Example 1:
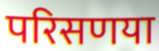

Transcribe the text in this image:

परिसणया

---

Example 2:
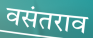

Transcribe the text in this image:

वसंतराव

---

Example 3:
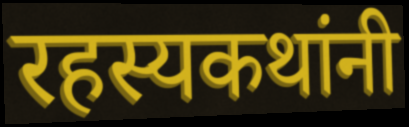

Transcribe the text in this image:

रहस्यकथांनी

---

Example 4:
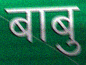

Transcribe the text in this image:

बाबु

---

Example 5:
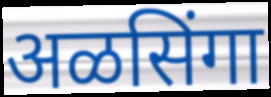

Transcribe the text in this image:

अळसिंगा